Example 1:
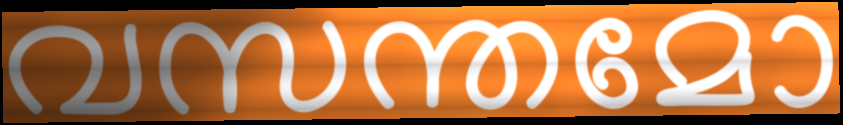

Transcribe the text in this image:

വസന്തമോ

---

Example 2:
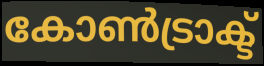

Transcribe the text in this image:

കോൺട്രാക്ട്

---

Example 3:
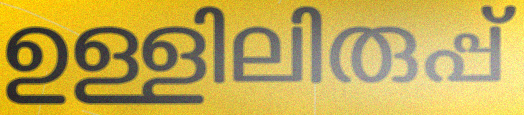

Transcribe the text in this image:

ഉള്ളിലിരുപ്പ്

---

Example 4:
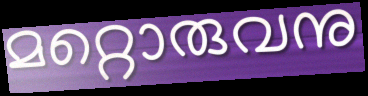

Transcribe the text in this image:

മറ്റൊരുവനു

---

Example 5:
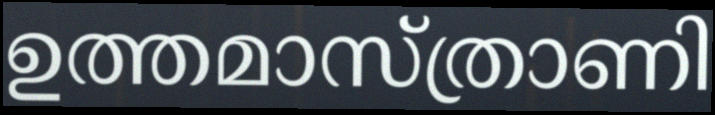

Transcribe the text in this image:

ഉത്തമാസ്ത്രാണി